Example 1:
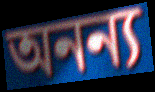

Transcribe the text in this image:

অনন্য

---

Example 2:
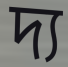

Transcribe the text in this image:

দ্য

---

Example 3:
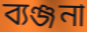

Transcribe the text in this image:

ব্যঞ্জনা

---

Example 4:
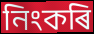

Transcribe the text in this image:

নিংকৰি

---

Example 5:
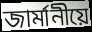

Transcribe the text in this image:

জাৰ্মানীয়ে